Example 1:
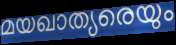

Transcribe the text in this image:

മയഖാത്യരെയും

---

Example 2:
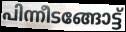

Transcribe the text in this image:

പിന്നീടങ്ങോട്ട്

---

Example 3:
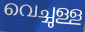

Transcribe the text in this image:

വെച്ചുള്ള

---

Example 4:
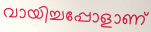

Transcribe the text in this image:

വായിച്ചപ്പോളാണ്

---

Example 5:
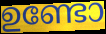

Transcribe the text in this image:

ഉണ്ടോ